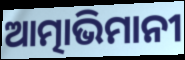
ଆତ୍ମାଭିମାନୀ